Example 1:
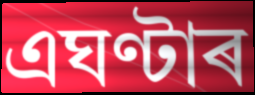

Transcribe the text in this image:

এঘণ্টাৰ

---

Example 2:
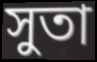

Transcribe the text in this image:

সুতা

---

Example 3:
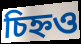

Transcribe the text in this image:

চিহ্নও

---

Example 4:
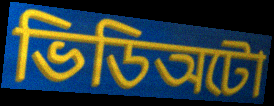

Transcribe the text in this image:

ভিডিঅটো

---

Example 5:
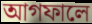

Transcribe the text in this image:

আগফালে